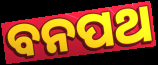
ବନପଥ